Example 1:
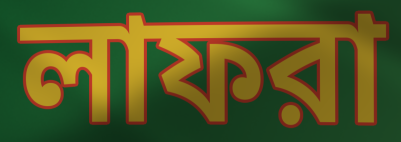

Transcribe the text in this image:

লাফরা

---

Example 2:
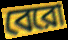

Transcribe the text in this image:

বেরো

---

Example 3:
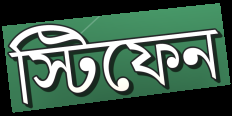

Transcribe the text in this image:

স্টিফেন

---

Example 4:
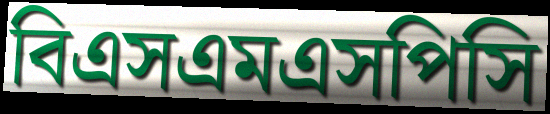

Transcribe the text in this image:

বিএসএমএসপিসি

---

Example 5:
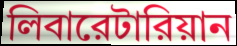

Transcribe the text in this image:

লিবারেটারিয়ান